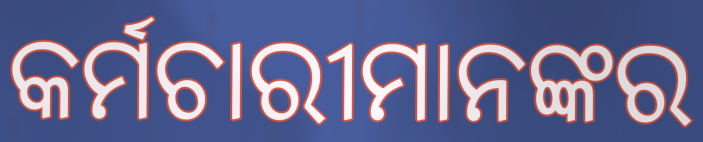
କର୍ମଚାରୀମାନଙ୍କର